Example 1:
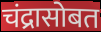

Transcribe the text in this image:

चंद्रासोबत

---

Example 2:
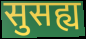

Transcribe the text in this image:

सुसह्य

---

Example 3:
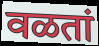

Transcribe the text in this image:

वळतां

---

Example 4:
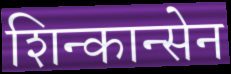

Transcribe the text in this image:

शिन्कान्सेन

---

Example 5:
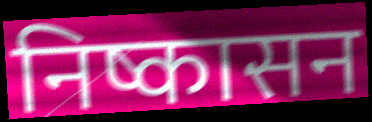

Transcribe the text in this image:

निष्कासन